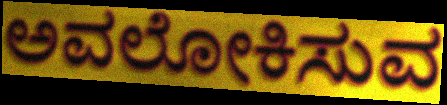
ಅವಲೋಕಿಸುವ